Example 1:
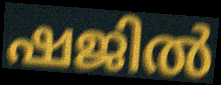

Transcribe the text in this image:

ഷജിൽ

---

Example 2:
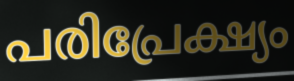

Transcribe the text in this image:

പരിപ്രേക്ഷ്യം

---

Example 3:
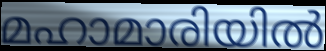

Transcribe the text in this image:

മഹാമാരിയിൽ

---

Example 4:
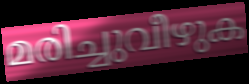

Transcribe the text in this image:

മരിച്ചുവീഴുക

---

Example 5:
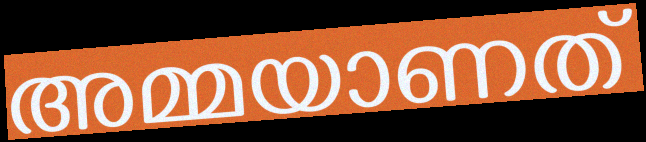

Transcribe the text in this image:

അമ്മയാണത്